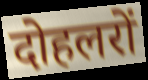
दोहलरों